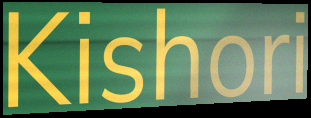
Kishori